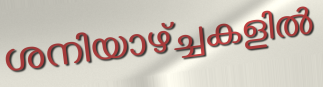
ശനിയാഴ്ച്ചകളിൽ